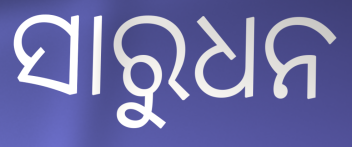
ସାରୁଧନ